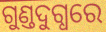
ଗୁଣ୍ଡଦୁଗ୍ଧରେ